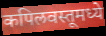
कपिलवस्तूमध्ये